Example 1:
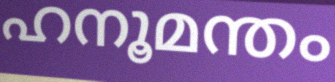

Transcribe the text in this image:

ഹനൂമന്തം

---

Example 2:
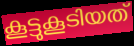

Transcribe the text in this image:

കൂട്ടുകൂടിയത്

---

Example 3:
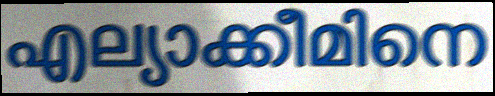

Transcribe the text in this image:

എല്യാക്കീമിനെ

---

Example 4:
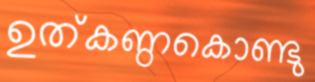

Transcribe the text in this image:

ഉത്കണ്ഠകൊണ്ടു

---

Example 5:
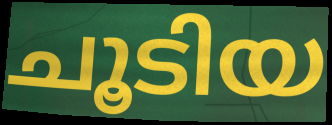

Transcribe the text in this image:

ചൂടിയ